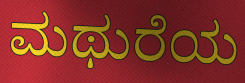
ಮಥುರೆಯ